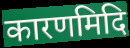
कारणमिदि